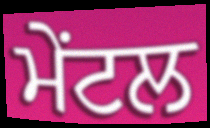
ਮੇਂਟਲ